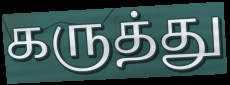
கருத்து